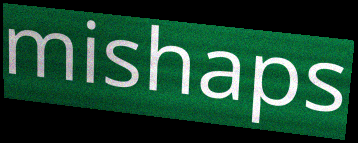
mishaps